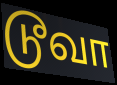
டூவா